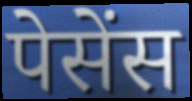
पेसेंस